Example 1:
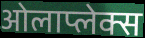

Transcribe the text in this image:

ओलाप्लेक्स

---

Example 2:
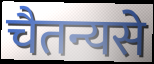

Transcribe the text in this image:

चैतन्यसे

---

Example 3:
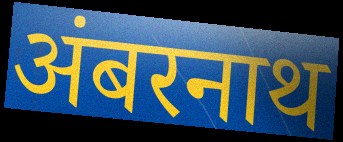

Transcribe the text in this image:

अंबरनाथ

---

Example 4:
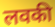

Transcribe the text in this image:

लवकी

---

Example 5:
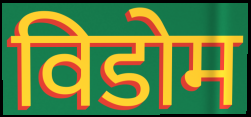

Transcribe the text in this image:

विडोम